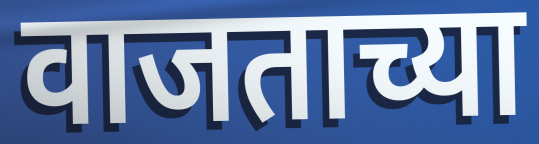
वाजताच्या